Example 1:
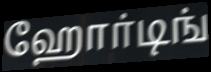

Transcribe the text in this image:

ஹோர்டிங்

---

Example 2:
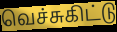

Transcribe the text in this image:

வெச்சுகிட்டு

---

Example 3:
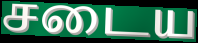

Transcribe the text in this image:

சடைய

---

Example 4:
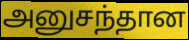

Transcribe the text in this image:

அனுசந்தான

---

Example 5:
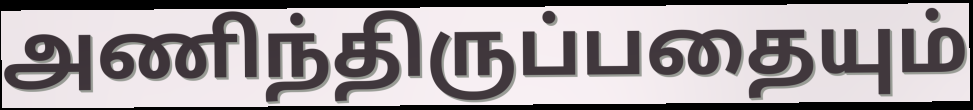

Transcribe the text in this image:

அணிந்திருப்பதையும்